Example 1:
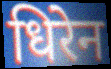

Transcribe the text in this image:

धिरेन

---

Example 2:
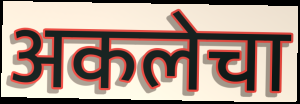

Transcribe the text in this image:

अकलेचा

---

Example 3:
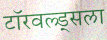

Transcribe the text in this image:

टॉरवल्ड्सला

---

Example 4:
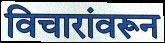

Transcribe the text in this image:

विचारांवरून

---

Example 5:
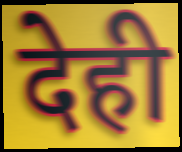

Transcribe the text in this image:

देही